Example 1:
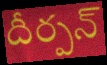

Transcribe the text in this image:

దీర్పన్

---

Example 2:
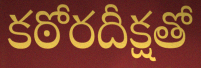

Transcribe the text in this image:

కఠోరదీక్షతో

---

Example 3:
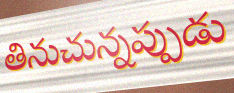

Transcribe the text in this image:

తినుచున్నప్పుడు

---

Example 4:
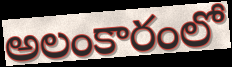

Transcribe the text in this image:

అలంకారంలో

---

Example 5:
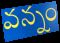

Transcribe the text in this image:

వన్నం